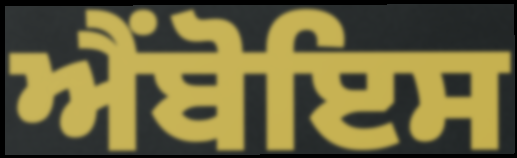
ਐਂਬੋਇਸ